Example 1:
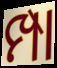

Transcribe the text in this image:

ମ୍ପା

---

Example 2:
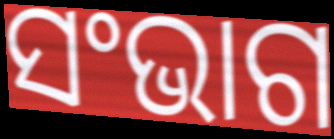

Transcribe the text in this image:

ସଂଭାଗ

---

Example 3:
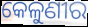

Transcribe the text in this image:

କେଳୁଣୀର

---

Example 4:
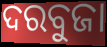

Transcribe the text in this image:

ଦରବୁଜା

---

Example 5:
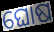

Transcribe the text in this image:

ଘୋଷ